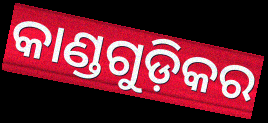
କାଣ୍ଡଗୁଡ଼ିକର